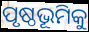
ପୃଷ୍ଠଭୂମିକୁ